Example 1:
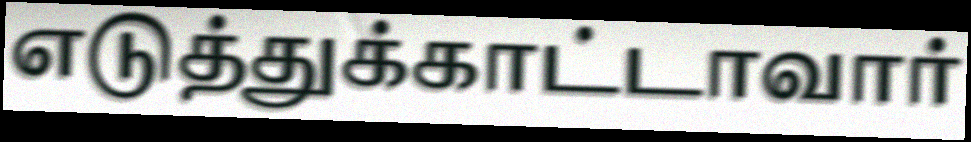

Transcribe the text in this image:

எடுத்துக்காட்டாவார்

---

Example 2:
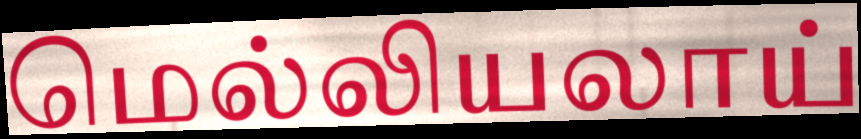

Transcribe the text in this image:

மெல்லியலாய்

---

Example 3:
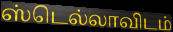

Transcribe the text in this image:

ஸ்டெல்லாவிடம்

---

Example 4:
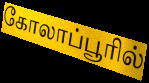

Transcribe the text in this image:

கோலாப்பூரில்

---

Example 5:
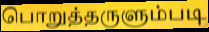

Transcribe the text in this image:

பொறுத்தருளும்படி